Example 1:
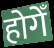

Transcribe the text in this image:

होगेँ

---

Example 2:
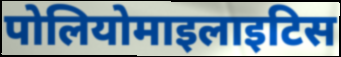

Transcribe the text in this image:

पोलियोमाइलाइटिस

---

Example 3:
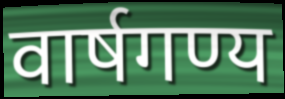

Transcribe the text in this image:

वार्षगण्य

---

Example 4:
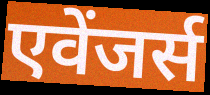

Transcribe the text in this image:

एवेंजर्स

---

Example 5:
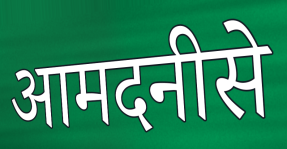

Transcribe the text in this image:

आमदनीसे